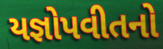
યજ્ઞોપવીતનો